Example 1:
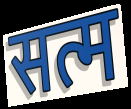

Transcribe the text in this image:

सत्म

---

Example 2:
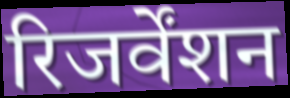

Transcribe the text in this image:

रिजर्वेंशन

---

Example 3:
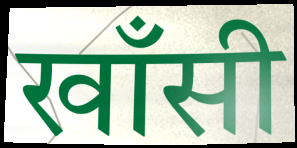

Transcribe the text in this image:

खाँसी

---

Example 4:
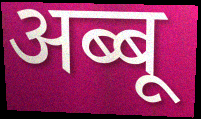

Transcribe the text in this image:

अब्बू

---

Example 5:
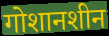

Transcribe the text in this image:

गोशानशीन